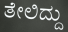
ತೇಲಿದ್ದು